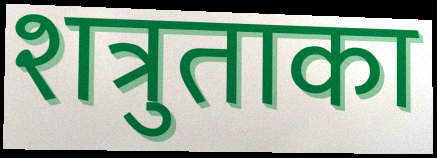
शत्रुताका